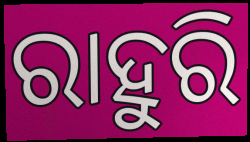
ରାହୁରି